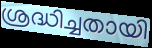
ശ്രദ്ധിച്ചതായി